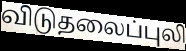
விடுதலைப்புலி